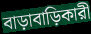
বাড়াবাড়িকারী